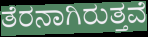
ತೆರನಾಗಿರುತ್ತವೆ